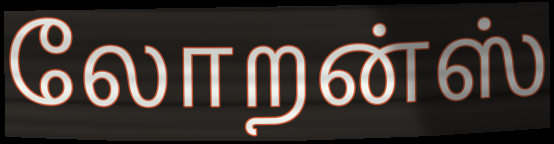
லோறன்ஸ்